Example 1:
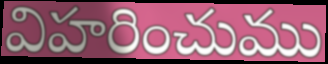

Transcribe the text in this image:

విహరించుము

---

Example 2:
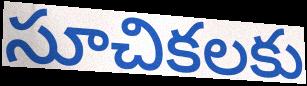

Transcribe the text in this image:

సూచికలకు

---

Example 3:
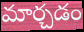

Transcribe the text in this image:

మార్చడం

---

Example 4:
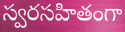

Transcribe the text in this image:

స్వరసహితంగా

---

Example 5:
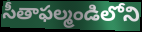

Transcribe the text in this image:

సీతాఫల్మండిలోని